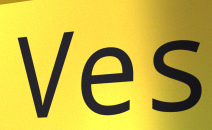
Ves